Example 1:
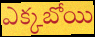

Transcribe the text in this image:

ఎక్కబోయి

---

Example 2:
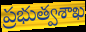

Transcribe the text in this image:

ప్రభుత్వశాఖ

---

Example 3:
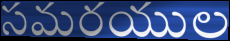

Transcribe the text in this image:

సమరయుల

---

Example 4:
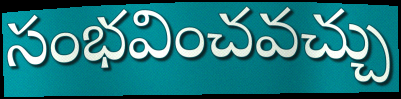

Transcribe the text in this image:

సంభవించవచ్చు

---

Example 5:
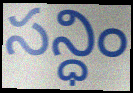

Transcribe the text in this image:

సన్ధిం